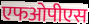
एफओपीएस